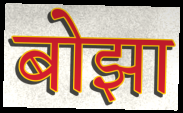
बोझा